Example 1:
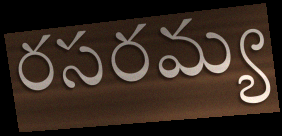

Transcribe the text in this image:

రసరమ్య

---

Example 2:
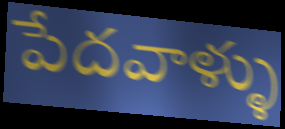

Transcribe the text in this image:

పేదవాళ్ళు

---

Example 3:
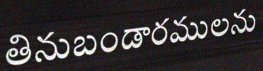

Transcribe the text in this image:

తినుబండారములను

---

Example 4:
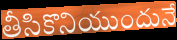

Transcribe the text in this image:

తీసికొనియుందునే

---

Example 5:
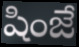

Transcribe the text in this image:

షింజే